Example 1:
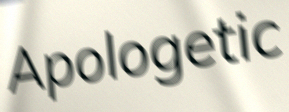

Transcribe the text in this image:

Apologetic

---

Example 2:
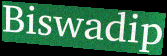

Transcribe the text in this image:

Biswadip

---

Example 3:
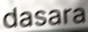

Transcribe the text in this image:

dasara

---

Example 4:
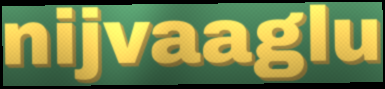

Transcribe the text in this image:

nijvaaglu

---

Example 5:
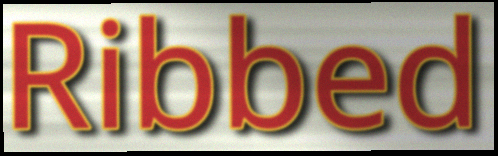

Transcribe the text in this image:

Ribbed